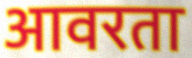
आवरता